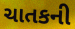
ચાતકની